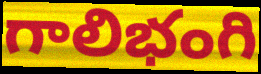
గాలిభంగి